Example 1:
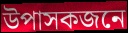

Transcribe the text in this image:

উপাসকজনে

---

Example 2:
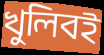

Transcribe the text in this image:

খুলিবই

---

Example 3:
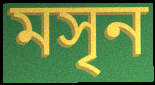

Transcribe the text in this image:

মসৃন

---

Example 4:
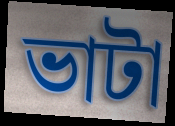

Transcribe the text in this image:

ভাটা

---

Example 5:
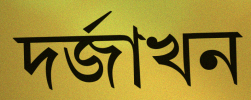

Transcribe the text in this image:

দৰ্জাখন